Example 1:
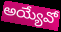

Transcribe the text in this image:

అయ్యేవో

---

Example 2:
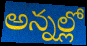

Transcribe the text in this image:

అన్నల్లో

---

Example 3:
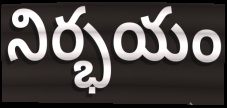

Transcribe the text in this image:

నిర్భయం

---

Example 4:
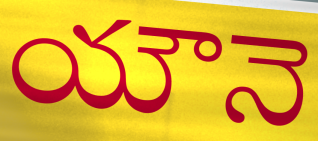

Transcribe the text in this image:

యౌనె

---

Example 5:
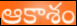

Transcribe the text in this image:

ఆకాశం